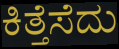
ಕಿತ್ತೆಸೆದು